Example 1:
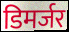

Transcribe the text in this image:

डिमर्जर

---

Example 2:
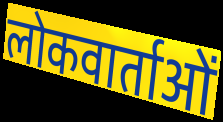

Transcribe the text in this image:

लोकवार्ताओं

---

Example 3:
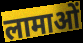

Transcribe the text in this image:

लामाओं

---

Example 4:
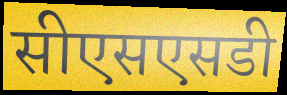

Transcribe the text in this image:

सीएसएसडी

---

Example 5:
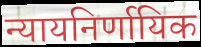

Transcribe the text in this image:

न्यायनिर्णायिक